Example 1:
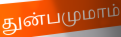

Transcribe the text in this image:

துன்பமுமாம்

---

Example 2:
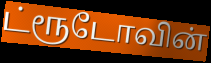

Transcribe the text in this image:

ட்ரூடோவின்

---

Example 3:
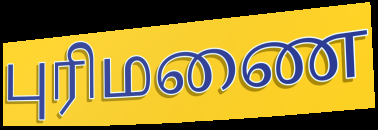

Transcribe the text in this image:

புரிமணை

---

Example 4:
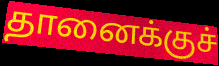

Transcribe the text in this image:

தானைக்குச்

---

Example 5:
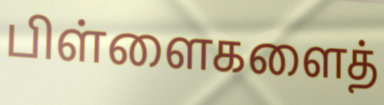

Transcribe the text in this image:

பிள்ளைகளைத்